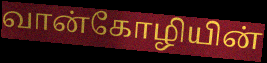
வான்கோழியின்